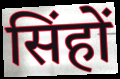
सिंहों